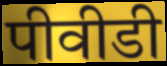
पीवीडी